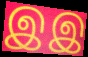
இஇ